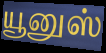
யூனுஸ்